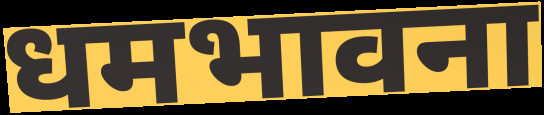
धमभावना